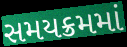
સમયક્રમમાં